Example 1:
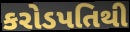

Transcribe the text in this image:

કરોડપતિથી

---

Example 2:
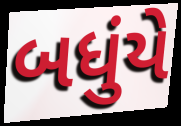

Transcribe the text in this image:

બધુંયે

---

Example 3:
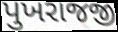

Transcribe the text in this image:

પુખરાજજી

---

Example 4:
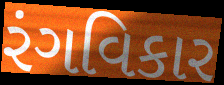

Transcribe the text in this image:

રંગવિકાર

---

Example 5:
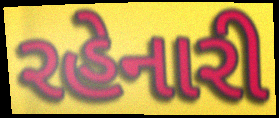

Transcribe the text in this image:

રહેનારી